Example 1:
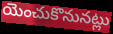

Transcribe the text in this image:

యెంచుకొనునట్లు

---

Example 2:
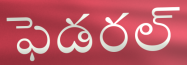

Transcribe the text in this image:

ఫెడరల్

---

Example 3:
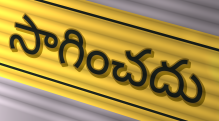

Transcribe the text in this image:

సాగించదు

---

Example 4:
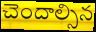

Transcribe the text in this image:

చెందాల్సిన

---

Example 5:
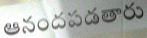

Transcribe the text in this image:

ఆనందపడతారు